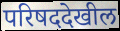
परिषददेखील